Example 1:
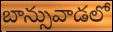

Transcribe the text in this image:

బాన్సువాడలో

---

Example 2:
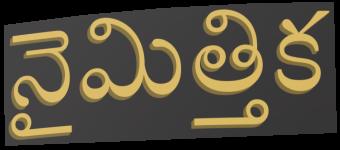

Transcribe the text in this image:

నైమిత్తిక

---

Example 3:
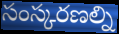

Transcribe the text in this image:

సంస్కరణల్ని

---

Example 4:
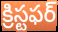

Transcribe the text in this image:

క్రిస్టఫర్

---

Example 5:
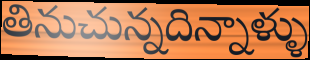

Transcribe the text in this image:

తినుచున్నదిన్నాళ్ళు